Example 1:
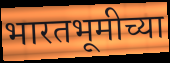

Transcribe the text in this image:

भारतभूमीच्या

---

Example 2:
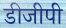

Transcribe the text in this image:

डीजीपी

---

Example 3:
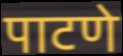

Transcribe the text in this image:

पाटणे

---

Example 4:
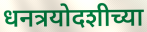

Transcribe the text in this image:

धनत्रयोदशीच्या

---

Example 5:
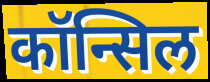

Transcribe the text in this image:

कॉन्सिल